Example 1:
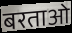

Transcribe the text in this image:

बरताओ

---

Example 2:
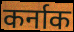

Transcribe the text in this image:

कर्नाक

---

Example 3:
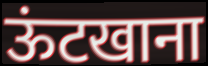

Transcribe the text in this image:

ऊंटखाना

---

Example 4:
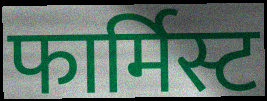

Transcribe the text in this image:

फार्मिस्ट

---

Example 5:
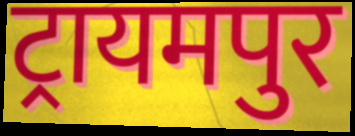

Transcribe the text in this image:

ट्रायमपुर